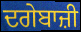
ਦਗੇਬਾਜ਼ੀ